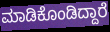
ಮಾಡಿಕೊಂಡಿದ್ದಾರೆ